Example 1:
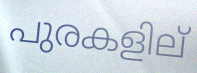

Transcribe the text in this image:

പുരകളില്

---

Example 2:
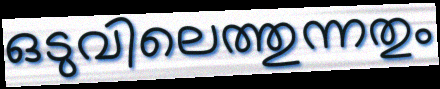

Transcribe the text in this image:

ഒടുവിലെത്തുന്നതും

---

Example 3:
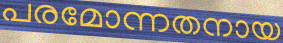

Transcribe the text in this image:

പരമോന്നതനായ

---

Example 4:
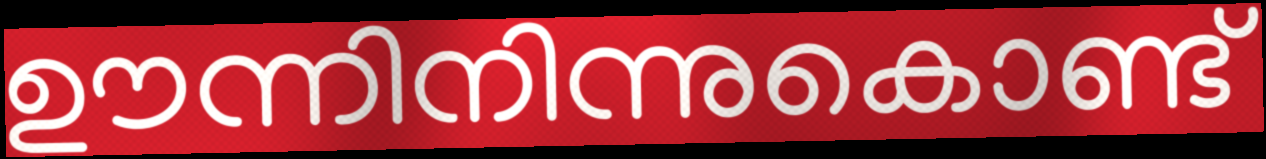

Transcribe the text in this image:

ഊന്നിനിന്നുകൊണ്ട്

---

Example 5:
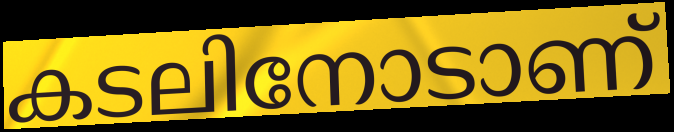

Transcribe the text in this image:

കടലിനോടാണ്